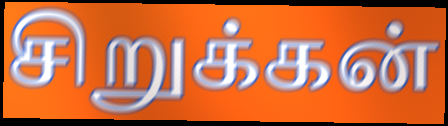
சிறுக்கன்